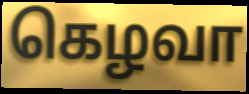
கெழவா